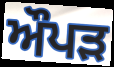
ਔਪੜ